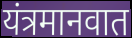
यंत्रमानवात